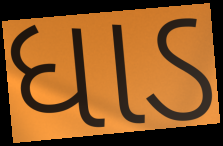
ધાડ